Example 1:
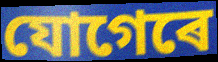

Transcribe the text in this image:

যোগেৰে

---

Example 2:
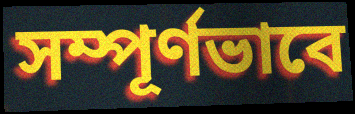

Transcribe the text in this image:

সম্পূৰ্ণভাবে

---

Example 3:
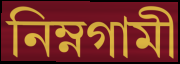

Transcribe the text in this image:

নিম্নগামী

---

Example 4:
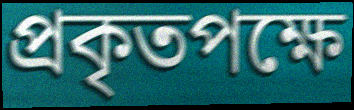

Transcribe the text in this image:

প্ৰকৃতপক্ষে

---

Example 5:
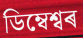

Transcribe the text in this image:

ডিম্বেশ্বৰ